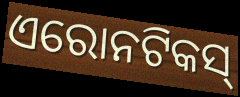
ଏରୋନଟିକସ୍